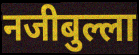
नजीबुल्ला